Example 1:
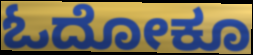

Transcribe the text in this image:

ಓದೋಕೂ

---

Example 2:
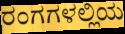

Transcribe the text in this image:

ರಂಗಗಳಲ್ಲಿಯ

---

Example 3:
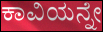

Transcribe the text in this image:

ಕಾವಿಯನ್ನೇ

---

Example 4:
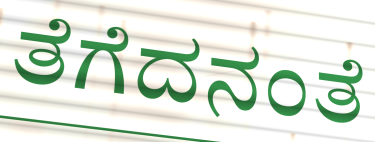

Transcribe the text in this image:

ತೆಗೆದನಂತೆ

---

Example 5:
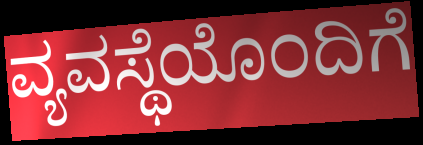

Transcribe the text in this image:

ವ್ಯವಸ್ಥೆಯೊಂದಿಗೆ